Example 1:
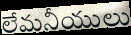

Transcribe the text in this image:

లేమనీయులు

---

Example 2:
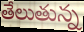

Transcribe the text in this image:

తేలుతున్న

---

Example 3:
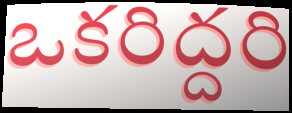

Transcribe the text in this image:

ఒకరిద్దరి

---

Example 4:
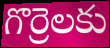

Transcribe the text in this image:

గొర్రెలకు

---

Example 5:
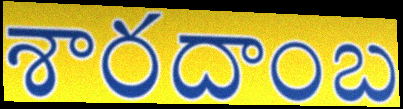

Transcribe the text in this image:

శారదాంబ